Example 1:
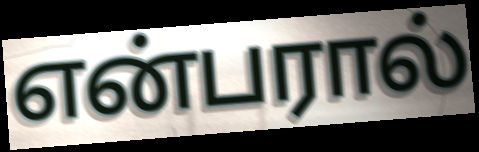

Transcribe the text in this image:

என்பரால்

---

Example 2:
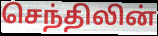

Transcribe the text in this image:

செந்திலின்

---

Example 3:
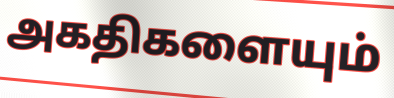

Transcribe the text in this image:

அகதிகளையும்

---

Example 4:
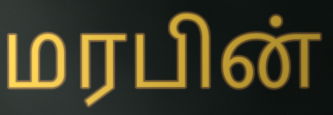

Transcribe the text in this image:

மரபின்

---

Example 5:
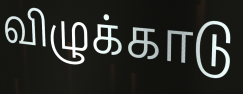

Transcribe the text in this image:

விழுக்காடு